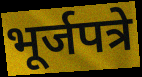
भूर्जपत्रे